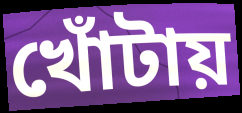
খোঁটায়